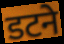
डटने